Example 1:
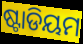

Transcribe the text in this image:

ଷ୍ଟାଡିୟମ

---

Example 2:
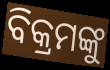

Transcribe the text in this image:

ବିକ୍ରମଙ୍କୁ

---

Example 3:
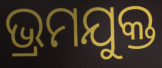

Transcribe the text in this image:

ଭ୍ରମଯୁକ୍ତ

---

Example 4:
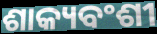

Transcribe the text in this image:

ଶାକ୍ୟବଂଶୀ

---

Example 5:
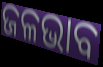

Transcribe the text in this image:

ଜଳଭାବ